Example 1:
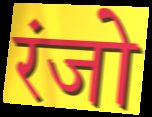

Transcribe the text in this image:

रंजो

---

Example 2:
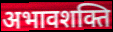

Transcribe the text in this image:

अभावशक्ति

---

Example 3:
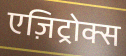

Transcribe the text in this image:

एज़िट्रोक्स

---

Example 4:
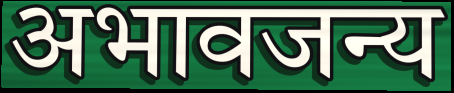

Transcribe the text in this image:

अभावजन्य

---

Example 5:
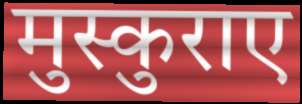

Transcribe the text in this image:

मुस्कुराए